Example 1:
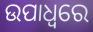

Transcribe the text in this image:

ଉପାଧ୍ଵରେ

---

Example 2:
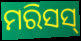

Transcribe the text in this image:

ମରିସସ୍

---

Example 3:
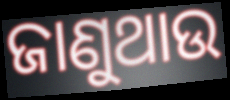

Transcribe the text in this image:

ଜାଣୁଥାଉ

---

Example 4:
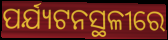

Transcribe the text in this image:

ପର୍ଯ୍ୟଟନସ୍ଥଳୀରେ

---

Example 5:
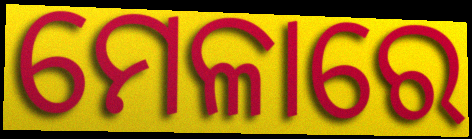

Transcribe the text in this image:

ମେଳାରେ